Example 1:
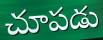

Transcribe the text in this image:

చూపడు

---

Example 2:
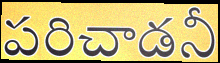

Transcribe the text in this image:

పరిచాడనీ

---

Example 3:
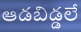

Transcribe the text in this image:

ఆడబిడ్డలే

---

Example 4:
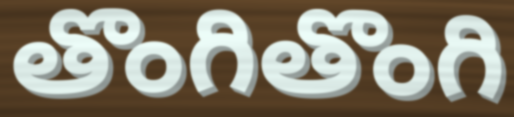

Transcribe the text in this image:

తొంగితొంగి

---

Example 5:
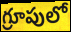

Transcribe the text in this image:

గ్రూపులో